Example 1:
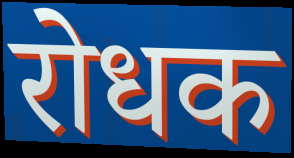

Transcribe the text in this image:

रोधक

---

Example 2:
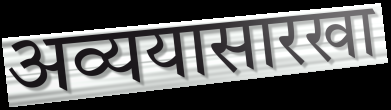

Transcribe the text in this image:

अव्ययासारखा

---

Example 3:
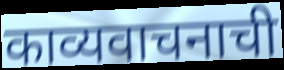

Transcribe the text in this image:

काव्यवाचनाची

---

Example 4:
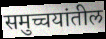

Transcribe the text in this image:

समुच्चयांतील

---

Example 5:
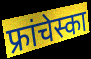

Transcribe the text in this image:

फ्रांचेस्का